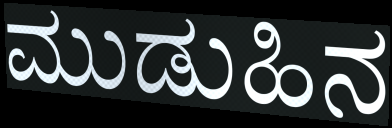
ಮುಡುಹಿನ